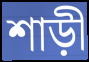
শাড়ী